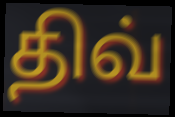
திவ்